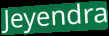
Jeyendra